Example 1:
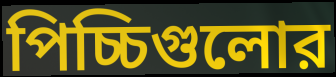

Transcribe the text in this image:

পিচ্চিগুলোর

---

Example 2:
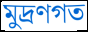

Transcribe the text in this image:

মুদ্রণগত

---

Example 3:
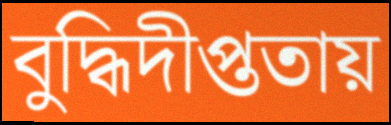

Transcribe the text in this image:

বুদ্ধিদীপ্ততায়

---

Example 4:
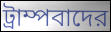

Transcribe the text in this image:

ট্রাম্পবাদের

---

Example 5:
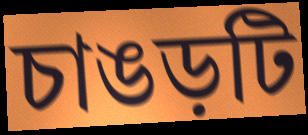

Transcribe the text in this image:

চাঙড়টি